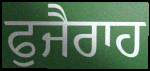
ਫੁਜੈਰਾਹ